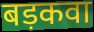
बड़कवा